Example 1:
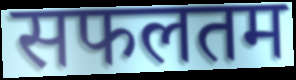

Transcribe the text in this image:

सफलतम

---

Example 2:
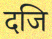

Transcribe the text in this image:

दजि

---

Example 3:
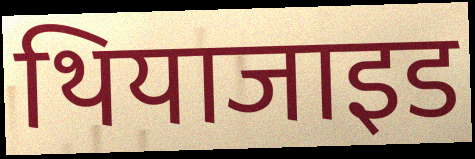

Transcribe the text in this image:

थियाजाइड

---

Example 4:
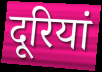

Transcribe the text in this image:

दूरियां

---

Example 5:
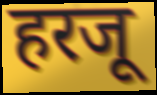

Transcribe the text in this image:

हरजू